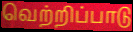
வெற்றிப்பாடு